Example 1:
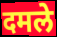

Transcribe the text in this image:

दमले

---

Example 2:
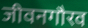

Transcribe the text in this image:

जीवनगौरव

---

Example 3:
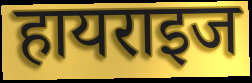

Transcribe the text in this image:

हायराइज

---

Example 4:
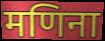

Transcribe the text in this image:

मणिना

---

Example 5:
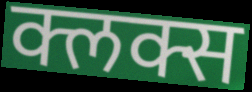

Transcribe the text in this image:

क्लक्स